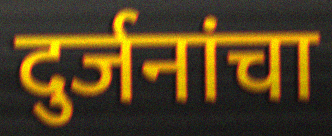
दुर्जनांचा